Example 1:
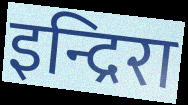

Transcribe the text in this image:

इन्द्रिरा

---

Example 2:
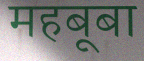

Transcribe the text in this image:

महबूबा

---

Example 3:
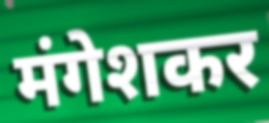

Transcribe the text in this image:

मंगेशकर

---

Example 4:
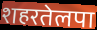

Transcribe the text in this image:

शहरतेलपा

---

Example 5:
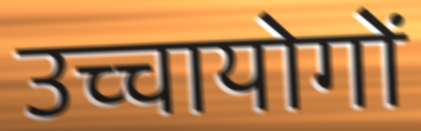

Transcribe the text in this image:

उच्‍चायोगों